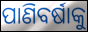
ପାଣିବର୍ଷାକୁ